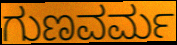
ಗುಣವರ್ಮ